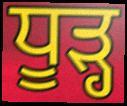
ਧੂੜ੍ਹ